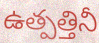
ఉత్పత్తినీ